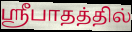
ஸ்ரீபாதத்தில்